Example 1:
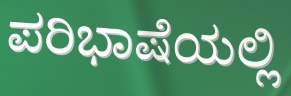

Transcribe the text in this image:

ಪರಿಭಾಷೆಯಲ್ಲಿ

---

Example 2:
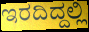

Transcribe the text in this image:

ಇರದಿದ್ದಲ್ಲಿ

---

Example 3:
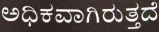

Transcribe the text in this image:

ಅಧಿಕವಾಗಿರುತ್ತದೆ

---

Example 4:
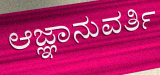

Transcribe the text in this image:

ಆಜ್ಞಾನುವರ್ತಿ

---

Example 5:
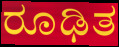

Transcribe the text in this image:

ರೂಢಿತ